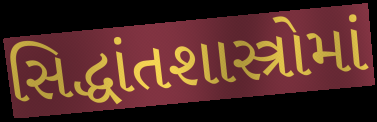
સિદ્ધાંતશાસ્ત્રોમાં